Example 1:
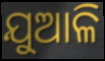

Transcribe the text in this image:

ଯୁଆଳି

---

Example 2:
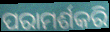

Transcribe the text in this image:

ପରାମର୍ଶକରି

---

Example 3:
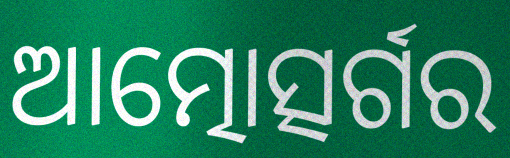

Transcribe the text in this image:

ଆତ୍ମୋତ୍ସର୍ଗର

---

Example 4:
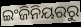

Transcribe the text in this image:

ଇଂଜିନିୟରରୁ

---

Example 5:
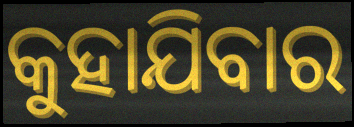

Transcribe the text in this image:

କୁହାଯିବାର